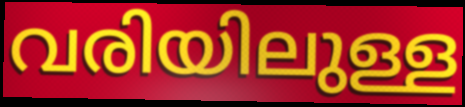
വരിയിലുള്ള